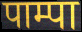
पाम्पा